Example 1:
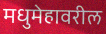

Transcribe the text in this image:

मधुमेहावरील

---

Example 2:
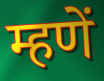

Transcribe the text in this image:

म्हणें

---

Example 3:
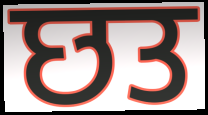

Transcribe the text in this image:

छउ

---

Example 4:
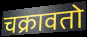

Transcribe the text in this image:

चक्रावतो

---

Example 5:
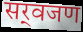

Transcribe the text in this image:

सर्वजण